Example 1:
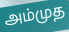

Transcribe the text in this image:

அம்முத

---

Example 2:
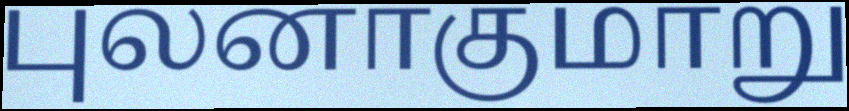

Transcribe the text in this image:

புலனாகுமாறு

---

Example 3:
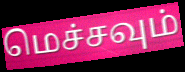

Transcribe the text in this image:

மெச்சவும்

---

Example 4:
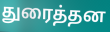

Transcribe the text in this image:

துரைத்தன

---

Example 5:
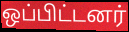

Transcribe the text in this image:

ஒப்பிட்டனர்